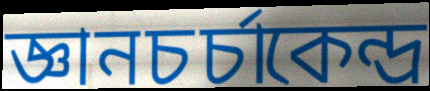
জ্ঞানচর্চাকেন্দ্র